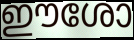
ഈശോ